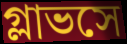
গ্লাভসে